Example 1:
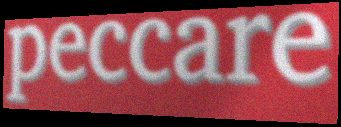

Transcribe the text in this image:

peccare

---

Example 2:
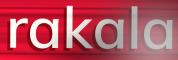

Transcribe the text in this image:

rakala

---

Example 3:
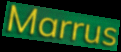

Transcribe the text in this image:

Marrus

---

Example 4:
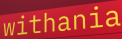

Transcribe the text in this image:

withania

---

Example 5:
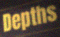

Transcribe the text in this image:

Depths